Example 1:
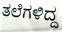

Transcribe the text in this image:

ತಲೆಗಳಿದ್ದ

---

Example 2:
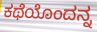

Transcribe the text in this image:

ಕಥೆಯೊಂದನ್ನ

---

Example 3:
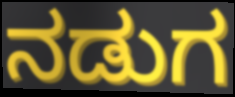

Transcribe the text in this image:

ನಡುಗ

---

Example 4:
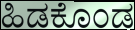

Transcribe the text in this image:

ಹಿಡಕೊಂಡ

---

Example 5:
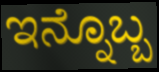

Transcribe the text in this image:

ಇನ್ನೊಬ್ಬ